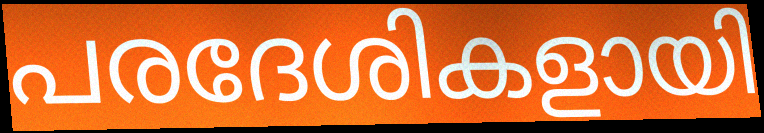
പരദേശികളായി